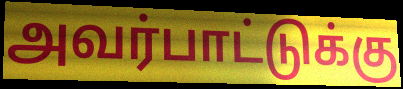
அவர்பாட்டுக்கு